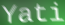
Yati